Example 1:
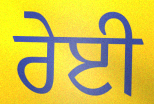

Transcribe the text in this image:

ਰੇਈ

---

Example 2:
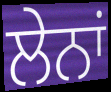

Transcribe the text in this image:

ਲੇਨਾਂ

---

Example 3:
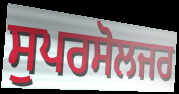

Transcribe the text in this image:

ਸੁਪਰਸੋਲਜਰ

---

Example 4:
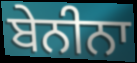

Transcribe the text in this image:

ਬੇਨੀਨਾ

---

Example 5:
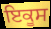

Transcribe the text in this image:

ਇਕੂਸ